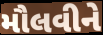
મૌલવીને